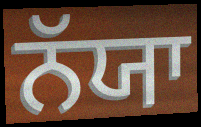
ਨੱਯਾ